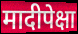
मादीपेक्षा